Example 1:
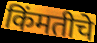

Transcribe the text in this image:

किंमतीचे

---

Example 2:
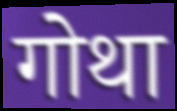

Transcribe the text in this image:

गोथा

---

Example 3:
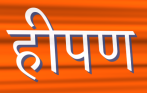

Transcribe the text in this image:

हीपण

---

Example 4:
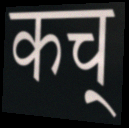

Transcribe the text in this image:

कच्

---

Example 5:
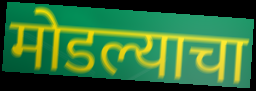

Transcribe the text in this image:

मोडल्याचा